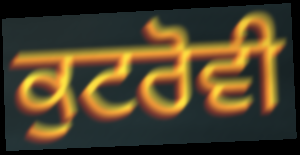
ਕੁਟਰੋਵੀ